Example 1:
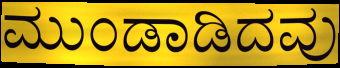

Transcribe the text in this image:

ಮುಂಡಾಡಿದವು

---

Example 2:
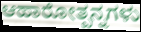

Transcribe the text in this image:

ಆಹಾರೋತ್ಪನ್ನಗಳು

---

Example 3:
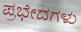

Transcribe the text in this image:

ಪ್ರಭೇದಗಳು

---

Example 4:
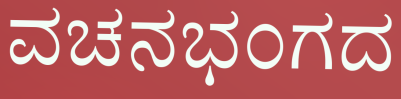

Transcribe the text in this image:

ವಚನಭಂಗದ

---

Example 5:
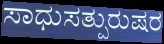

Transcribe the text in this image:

ಸಾಧುಸತ್ಪುರುಷರ